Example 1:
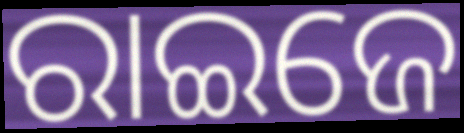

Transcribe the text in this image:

ରାଇଜେ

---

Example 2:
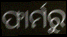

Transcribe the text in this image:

ଫାର୍ମରୁ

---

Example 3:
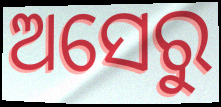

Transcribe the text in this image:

ଅସେରୁ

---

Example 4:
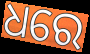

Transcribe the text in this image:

ଧରେ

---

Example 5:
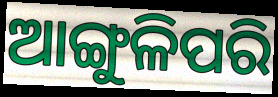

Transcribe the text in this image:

ଆଙ୍ଗୁଳିପରି